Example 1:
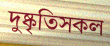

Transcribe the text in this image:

দুষ্কৃতিসকল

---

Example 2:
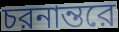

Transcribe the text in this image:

চরনান্তরে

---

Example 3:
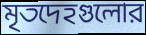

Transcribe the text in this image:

মৃতদেহগুলোর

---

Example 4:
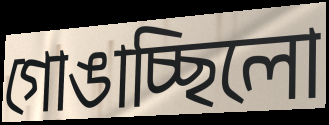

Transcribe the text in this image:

গোঙাচ্ছিলো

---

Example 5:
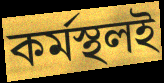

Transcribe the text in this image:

কর্মস্থলই